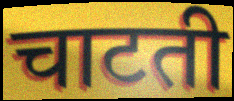
चाटती